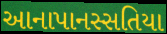
આનાપાનસ્સતિયા